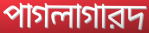
পাগলাগারদ